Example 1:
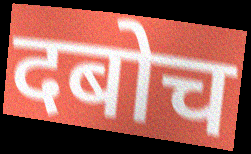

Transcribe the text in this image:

दबोच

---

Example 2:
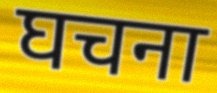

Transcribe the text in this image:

घचना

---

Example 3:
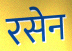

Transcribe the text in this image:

रसेन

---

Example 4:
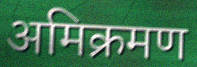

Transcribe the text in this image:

अमिक्रमण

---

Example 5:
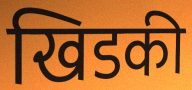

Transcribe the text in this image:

खिडकी